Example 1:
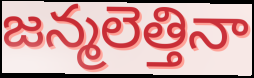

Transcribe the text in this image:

జన్మలెత్తినా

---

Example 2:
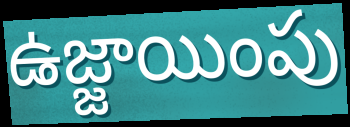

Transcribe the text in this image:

ఉజ్జాయింపు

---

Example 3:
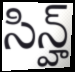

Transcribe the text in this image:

సిన్హ్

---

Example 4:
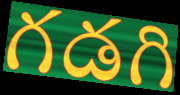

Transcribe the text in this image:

గడగి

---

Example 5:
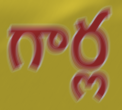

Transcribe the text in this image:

గార్ల